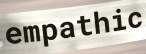
empathic